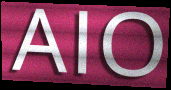
AIO